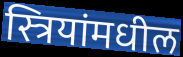
स्त्रियांमधील